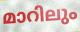
മാറിലും